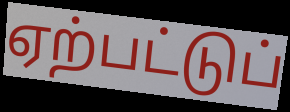
ஏற்பட்டுப்